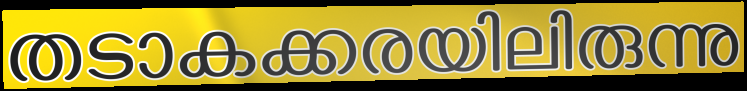
തടാകക്കരയിലിരുന്നു